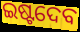
ଇଷ୍ଟଦେବ